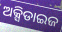
ଅକ୍ସିଡାଇଜ